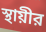
স্থায়ীর